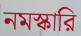
নমস্কারি